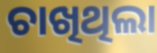
ଚାଖିଥିଲା